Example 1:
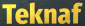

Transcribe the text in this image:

Teknaf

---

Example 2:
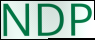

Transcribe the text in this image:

NDP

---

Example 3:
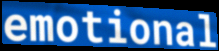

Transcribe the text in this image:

emotional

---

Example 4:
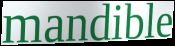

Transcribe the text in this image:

mandible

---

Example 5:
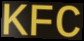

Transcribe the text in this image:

KFC